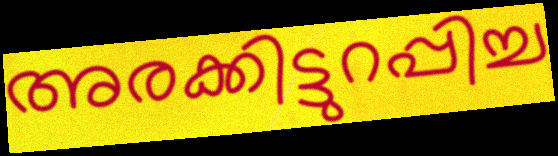
അരക്കിട്ടുറപ്പിച്ച